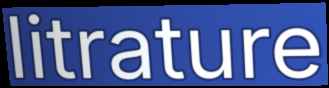
litrature